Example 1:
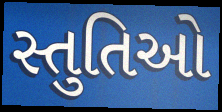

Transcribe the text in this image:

સ્તુતિઓ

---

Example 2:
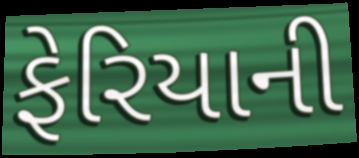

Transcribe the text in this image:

ફેરિયાની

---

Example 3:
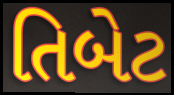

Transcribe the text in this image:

તિબેટ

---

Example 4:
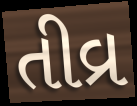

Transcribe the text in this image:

તીવ્ર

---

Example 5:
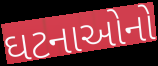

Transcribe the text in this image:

ઘટનાઓનો